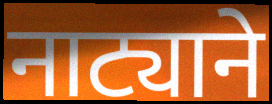
नाट्याने